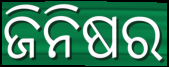
ଜିନିଷର